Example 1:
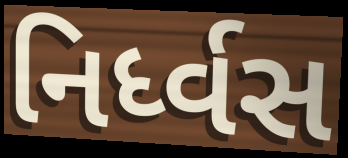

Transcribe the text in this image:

નિર્ધ્વસ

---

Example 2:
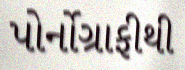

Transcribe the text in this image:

પોર્નોગ્રાફીથી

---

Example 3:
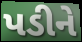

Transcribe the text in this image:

પડીને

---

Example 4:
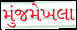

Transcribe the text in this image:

મુંજમેખલા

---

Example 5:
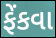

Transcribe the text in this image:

ફેંકવા